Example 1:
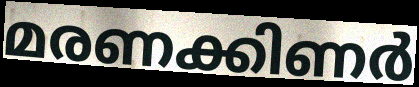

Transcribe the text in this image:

മരണക്കിണർ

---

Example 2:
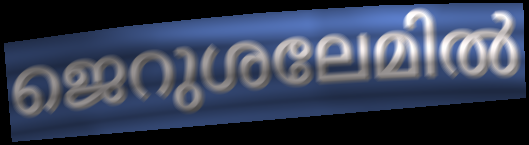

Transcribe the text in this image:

ജെറുശലേമിൽ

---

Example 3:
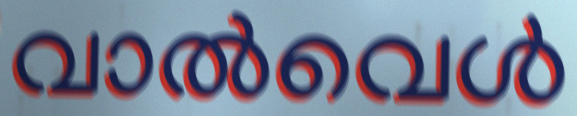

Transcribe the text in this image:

വാൽവെൾ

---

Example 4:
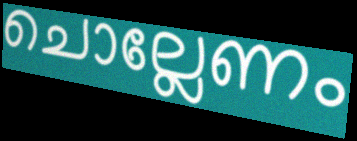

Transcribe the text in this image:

ചൊല്ലേണം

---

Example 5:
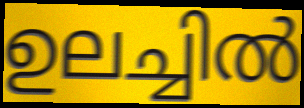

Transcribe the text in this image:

ഉലച്ചിൽ